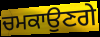
ਚਮਕਾਉਣਗੇ